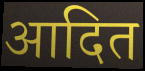
आदित